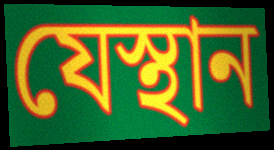
যেস্থান